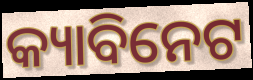
କ୍ୟାବିନେଟ